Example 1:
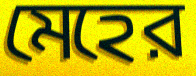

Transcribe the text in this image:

মেহের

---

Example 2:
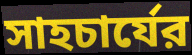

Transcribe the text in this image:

সাহচার্যের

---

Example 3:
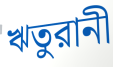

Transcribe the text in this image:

ঋতুরানী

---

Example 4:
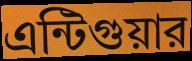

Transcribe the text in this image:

এন্টিগুয়ার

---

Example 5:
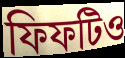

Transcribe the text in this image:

ফিফটিও